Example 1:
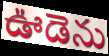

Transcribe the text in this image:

ఊడెను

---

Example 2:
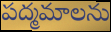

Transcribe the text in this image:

పద్మమాలను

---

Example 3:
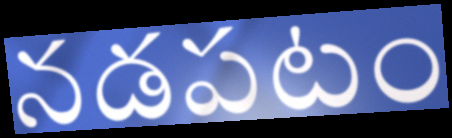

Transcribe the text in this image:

నడపటం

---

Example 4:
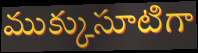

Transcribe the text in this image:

ముక్కుసూటిగా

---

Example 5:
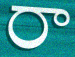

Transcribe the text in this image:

రా